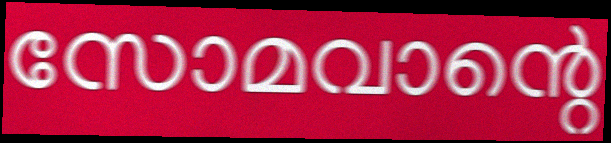
സോമവാന്റെ